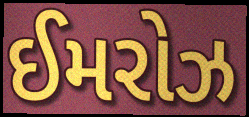
ઈમરોઝ